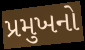
પ્રમુખનો